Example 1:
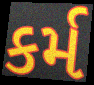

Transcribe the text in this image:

કર્મ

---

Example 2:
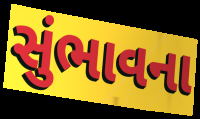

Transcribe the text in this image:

સુંભાવના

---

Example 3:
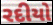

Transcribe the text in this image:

રદીયો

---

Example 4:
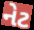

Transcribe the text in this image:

નેટ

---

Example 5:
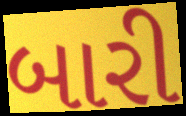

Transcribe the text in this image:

બારી